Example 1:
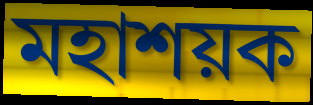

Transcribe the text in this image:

মহাশয়ক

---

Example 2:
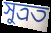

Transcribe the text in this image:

সুত্ৰত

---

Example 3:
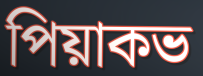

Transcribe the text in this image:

পিয়াকভ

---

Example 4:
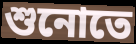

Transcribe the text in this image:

শুনোতে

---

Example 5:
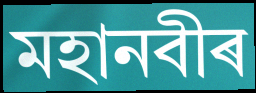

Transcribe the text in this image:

মহানবীৰ